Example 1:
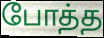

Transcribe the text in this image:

போத்த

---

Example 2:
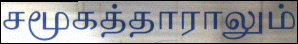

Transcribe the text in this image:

சமூகத்தாராலும்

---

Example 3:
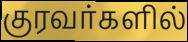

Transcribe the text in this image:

குரவர்களில்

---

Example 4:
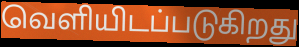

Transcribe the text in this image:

வெளியிடப்படுகிறது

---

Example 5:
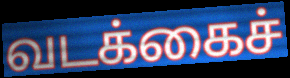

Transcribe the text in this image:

வடக்கைச்